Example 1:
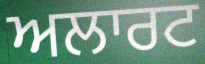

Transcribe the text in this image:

ਅਲਾਰਟ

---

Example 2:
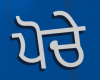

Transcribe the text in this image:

ਪੋਚੇ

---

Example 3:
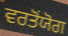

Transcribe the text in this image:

ਵਰਤੋਂਯੋਗ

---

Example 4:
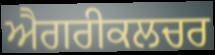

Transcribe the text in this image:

ਐਗਰੀਕਲਚਰ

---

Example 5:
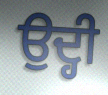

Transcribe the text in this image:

ਉਦ੍ਹੀ